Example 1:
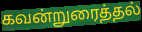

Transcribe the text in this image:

கவன்றுரைத்தல்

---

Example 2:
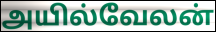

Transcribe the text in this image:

அயில்வேலன்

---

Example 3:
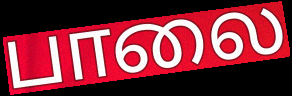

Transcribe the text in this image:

பாலை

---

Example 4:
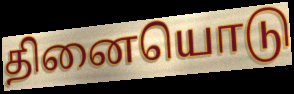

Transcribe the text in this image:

தினையொடு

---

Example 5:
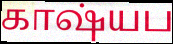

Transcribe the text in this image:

காஷ்யப